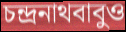
চন্দ্রনাথবাবুও